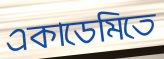
একাডেমিতে